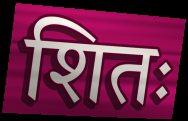
शितः